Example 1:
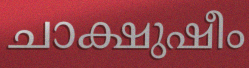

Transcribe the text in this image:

ചാക്ഷുഷീം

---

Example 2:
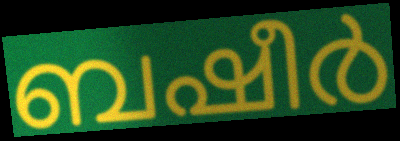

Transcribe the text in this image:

ബഷീർ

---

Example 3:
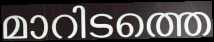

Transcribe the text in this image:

മാറിടത്തെ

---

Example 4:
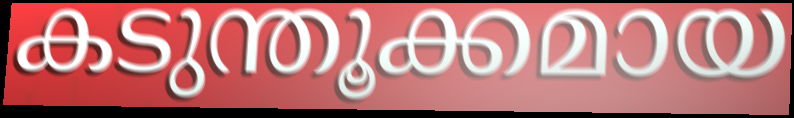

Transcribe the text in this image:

കടുന്തൂക്കമായ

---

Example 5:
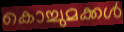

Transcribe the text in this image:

കൊച്ചുമക്കൾ